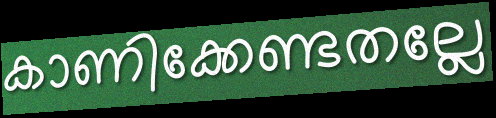
കാണിക്കേണ്ടതല്ലേ